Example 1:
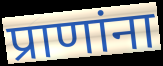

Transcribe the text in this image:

प्राणांना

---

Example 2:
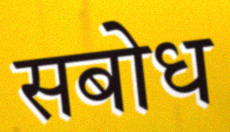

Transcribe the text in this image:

सबोध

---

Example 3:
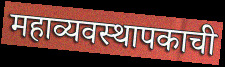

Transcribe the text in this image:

महाव्यवस्थापकाची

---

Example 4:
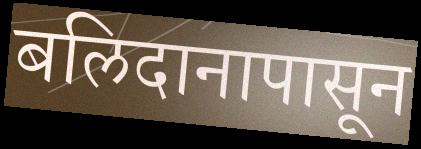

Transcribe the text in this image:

बलिदानापासून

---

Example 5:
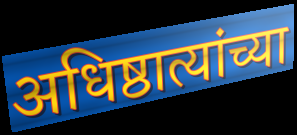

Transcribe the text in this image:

अधिष्ठात्यांच्या